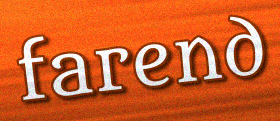
farend